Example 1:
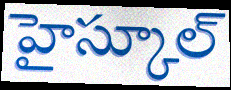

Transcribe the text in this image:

హైస్కూల్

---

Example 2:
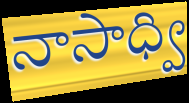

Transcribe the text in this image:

నాసాధ్వి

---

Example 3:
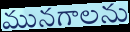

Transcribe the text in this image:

మునగాలను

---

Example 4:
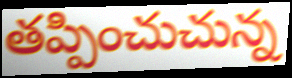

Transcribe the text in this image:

తప్పించుచున్న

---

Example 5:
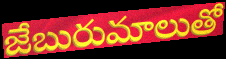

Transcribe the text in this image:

జేబురుమాలుతో